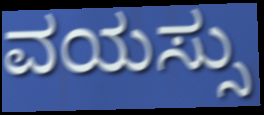
ವಯಸ್ಸು